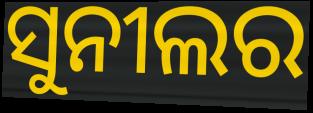
ସୁନୀଲର